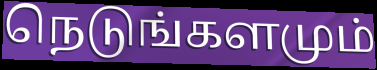
நெடுங்களமும்